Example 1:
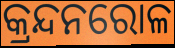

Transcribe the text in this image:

କ୍ରନ୍ଦନରୋଳ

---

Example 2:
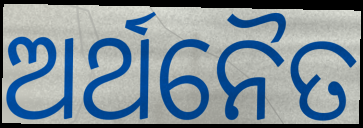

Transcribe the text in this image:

ଅର୍ଥନୈତ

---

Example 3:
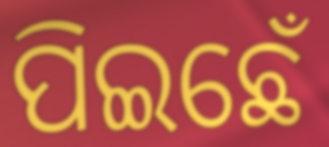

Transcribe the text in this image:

ପିଇଛେଁ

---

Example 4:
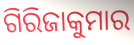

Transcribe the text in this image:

ଗିରିଜାକୁମାର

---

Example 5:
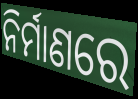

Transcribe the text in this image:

ନିର୍ମାଣରେ